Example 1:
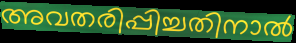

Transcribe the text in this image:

അവതരിപ്പിച്ചതിനാൽ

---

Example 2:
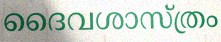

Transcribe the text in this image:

ദൈവശാസ്ത്രം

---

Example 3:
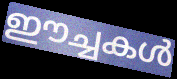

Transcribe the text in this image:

ഈച്ചകൾ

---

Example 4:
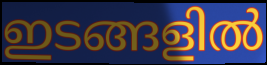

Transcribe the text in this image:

ഇടങ്ങളിൽ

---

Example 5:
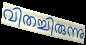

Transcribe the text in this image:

വിതച്ചിരുന്നു